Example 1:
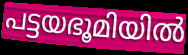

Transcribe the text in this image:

പട്ടയഭൂമിയിൽ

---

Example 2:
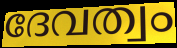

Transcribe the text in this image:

ദേവത്വം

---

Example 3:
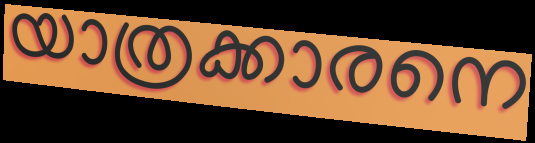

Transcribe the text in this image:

യാത്രക്കാരനെ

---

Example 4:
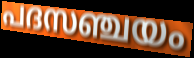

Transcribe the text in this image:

പദസഞ്ചയം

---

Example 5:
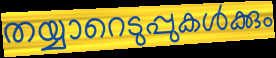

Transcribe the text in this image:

തയ്യാറെടുപ്പുകൾക്കും